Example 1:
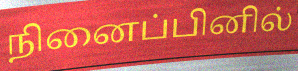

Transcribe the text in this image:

நினைப்பினில்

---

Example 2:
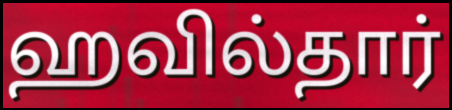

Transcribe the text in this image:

ஹவில்தார்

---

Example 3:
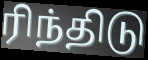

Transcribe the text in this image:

ரிந்திடு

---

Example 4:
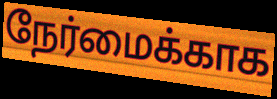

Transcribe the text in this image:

நேர்மைக்காக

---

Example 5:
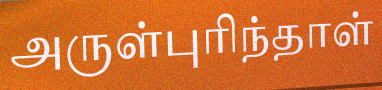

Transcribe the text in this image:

அருள்புரிந்தாள்